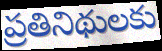
ప్రతినిథులకు